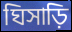
ঘিসাড়ি